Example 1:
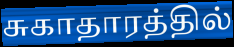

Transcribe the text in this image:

சுகாதாரத்தில்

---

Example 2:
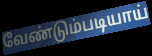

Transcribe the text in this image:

வேண்டும்படியாய்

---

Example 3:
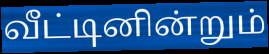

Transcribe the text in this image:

வீட்டினின்றும்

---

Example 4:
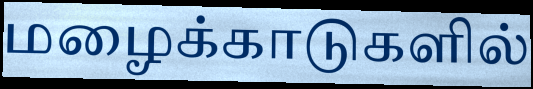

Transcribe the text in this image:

மழைக்காடுகளில்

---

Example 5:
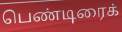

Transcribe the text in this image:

பெண்டிரைக்